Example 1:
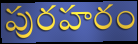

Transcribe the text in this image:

పురహరం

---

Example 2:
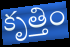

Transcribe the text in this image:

కృత్తిం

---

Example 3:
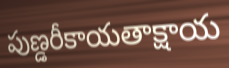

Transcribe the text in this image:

పుణ్డరీకాయతాక్షాయ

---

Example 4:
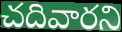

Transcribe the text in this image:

చదివారని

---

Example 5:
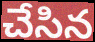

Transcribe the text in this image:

చేసిన